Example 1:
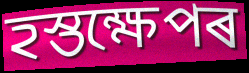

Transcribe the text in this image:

হস্তক্ষেপৰ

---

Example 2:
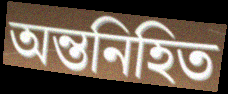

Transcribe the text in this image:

অন্তনিহিত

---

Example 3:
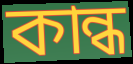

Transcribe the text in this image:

কান্ধ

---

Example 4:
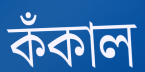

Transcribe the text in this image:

কঁকাল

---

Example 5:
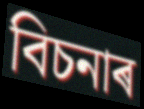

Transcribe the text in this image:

বিচনাৰ